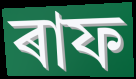
ৰাফ